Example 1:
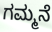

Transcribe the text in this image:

ಗಮ್ಮನೆ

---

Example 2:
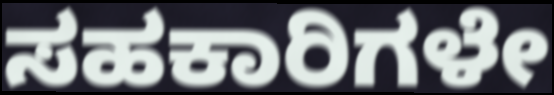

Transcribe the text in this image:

ಸಹಕಾರಿಗಳೇ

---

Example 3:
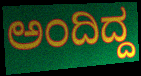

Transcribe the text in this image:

ಅಂದಿದ್ದ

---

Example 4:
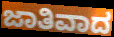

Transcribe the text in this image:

ಜಾತಿವಾದ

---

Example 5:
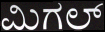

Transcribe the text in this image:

ಮಿಗಲ್